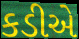
કડીએ